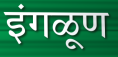
इंगळूण